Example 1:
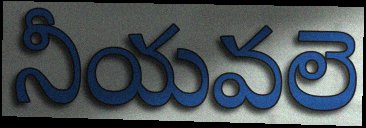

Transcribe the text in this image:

నీయవలె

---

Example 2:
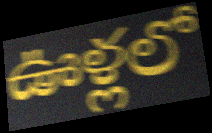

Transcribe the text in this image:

ఊళ్లలో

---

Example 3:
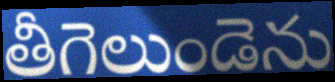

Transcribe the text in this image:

తీగెలుండెను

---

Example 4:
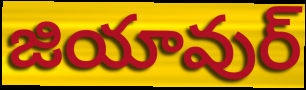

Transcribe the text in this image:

జియావుర్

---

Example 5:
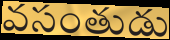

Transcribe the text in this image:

వసంతుడు